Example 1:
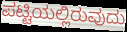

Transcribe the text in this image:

ಪಟ್ಟಿಯಲ್ಲಿರುವುದು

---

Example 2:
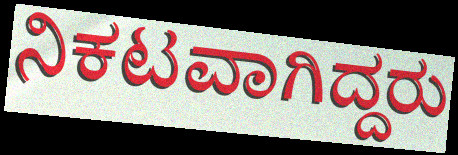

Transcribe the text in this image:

ನಿಕಟವಾಗಿದ್ದರು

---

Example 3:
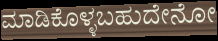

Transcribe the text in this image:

ಮಾಡಿಕೊಳ್ಳಬಹುದೇನೋ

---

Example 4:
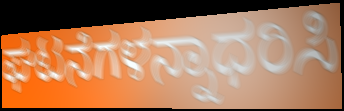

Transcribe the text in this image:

ಘಟನೆಗಳನ್ನಾಧರಿಸಿ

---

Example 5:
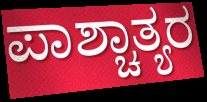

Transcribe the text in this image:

ಪಾಶ್ಚಾತ್ಯರ